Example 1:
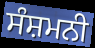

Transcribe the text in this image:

ਸੰਸ਼ਮਨੀ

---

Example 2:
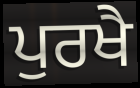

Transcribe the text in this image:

ਪੁਰਖੈ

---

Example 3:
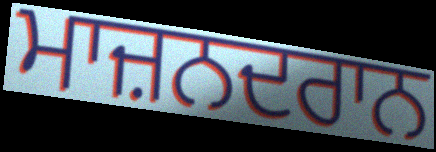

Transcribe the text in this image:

ਮਾਜ਼ਨਦਰਾਨ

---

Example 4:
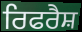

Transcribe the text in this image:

ਰਿਫਰੈਸ਼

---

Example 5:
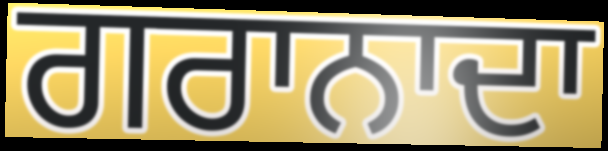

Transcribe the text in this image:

ਗਰਾਨਾਦਾ